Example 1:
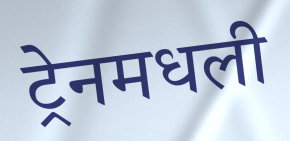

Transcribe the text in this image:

ट्रेनमधली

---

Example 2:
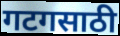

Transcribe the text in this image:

गटगसाठी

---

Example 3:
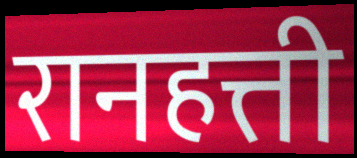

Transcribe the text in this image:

रानहत्ती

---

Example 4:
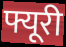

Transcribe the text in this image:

फ्यूरी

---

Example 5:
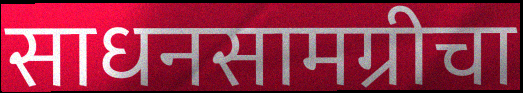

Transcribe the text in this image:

साधनसामग्रीचा